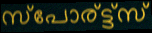
സ്പോര്ട്ട്സ്